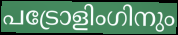
പട്രോളിംഗിനും